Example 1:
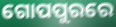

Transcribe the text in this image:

ଗୋପପୁରରେ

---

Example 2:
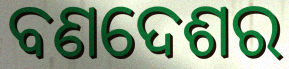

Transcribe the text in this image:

ବଣଦେଶର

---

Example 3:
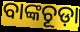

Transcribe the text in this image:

ବାଙ୍କଚୂଡ଼ା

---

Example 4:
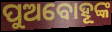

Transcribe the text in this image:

ପୁଅବୋହୂଙ୍କ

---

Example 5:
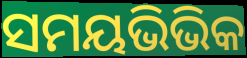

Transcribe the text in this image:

ସମୟଭିଭିକ